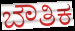
ಬೌತಿಕ